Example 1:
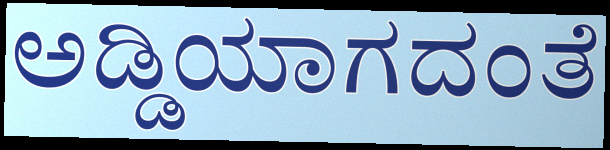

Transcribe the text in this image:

ಅಡ್ಡಿಯಾಗದಂತೆ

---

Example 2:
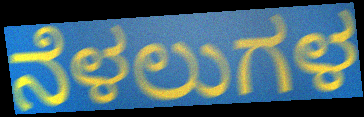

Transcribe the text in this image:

ನೆಳಲುಗಳ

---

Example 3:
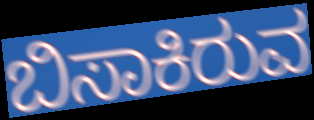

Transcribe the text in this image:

ಬಿಸಾಕಿರುವ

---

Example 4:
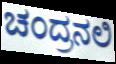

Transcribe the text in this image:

ಚಂದ್ರನಲಿ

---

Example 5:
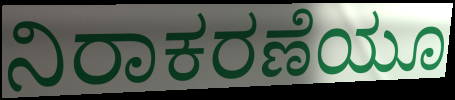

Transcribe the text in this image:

ನಿರಾಕರಣೆಯೂ